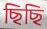
ছিছি